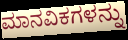
ಮಾನವಿಕಗಳನ್ನು